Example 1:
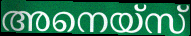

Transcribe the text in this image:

അനെയ്സ്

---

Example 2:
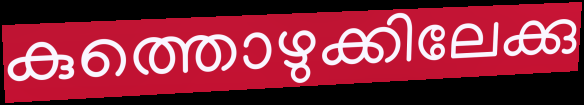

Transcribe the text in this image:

കുത്തൊഴുക്കിലേക്കു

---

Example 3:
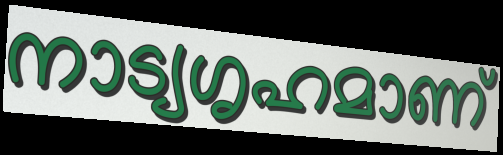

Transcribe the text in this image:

നാട്യഗൃഹമാണ്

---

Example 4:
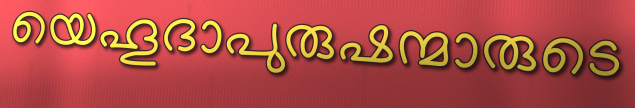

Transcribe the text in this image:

യെഹൂദാപുരുഷന്മാരുടെ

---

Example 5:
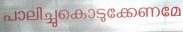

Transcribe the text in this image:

പാലിച്ചുകൊടുക്കേണമേ